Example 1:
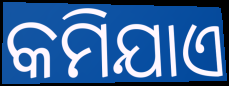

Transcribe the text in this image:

କମିଯାଏ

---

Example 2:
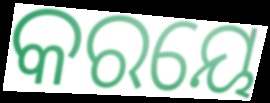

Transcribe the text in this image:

କରୟେ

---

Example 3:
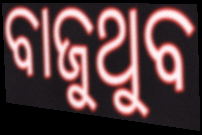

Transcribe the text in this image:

ବାଜୁଥୁବ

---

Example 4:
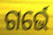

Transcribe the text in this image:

ଗର୍ଭେ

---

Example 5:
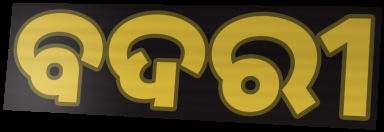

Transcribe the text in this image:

ବଦରୀ